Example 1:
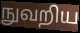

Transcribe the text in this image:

நுவறிய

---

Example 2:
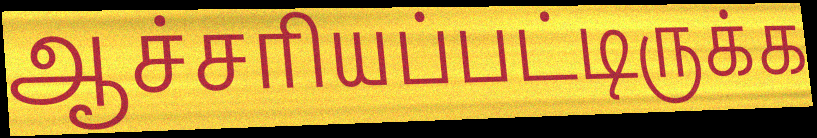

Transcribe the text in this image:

ஆச்சரியப்பட்டிருக்க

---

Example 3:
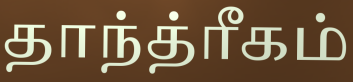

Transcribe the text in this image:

தாந்த்ரீகம்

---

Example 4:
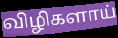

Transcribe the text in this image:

விழிகளாய்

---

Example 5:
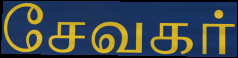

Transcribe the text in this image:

சேவகர்